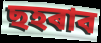
ছহৰাব